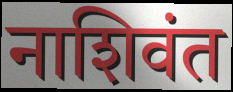
नाशिवंत